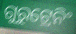
ଗୁରୁଟ୍ରେନିଂ